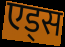
एड्स